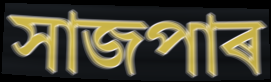
সাজপাৰ